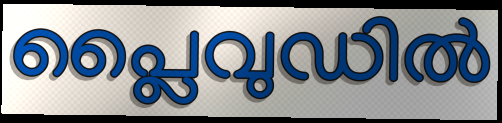
പ്ലൈവുഡിൽ